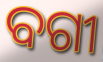
ବଗୀ